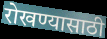
रोखण्यासाठी